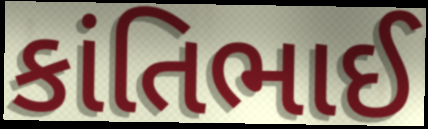
કાંતિભાઈ